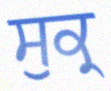
ਸੁਕ੍ਰ